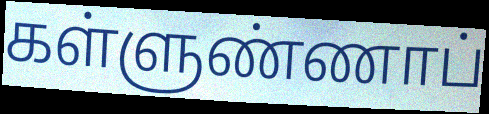
கள்ளுண்ணாப்